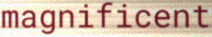
magnificent